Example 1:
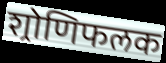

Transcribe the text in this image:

श्रोणिफलक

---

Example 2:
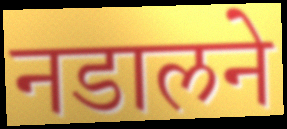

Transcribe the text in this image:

नडालने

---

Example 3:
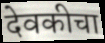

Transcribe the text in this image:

देवकीचा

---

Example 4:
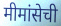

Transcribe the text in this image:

मीमांसेची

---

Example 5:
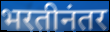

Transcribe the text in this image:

भरतीनंतर